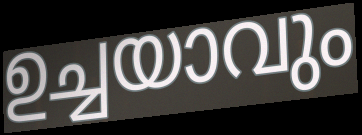
ഉച്ചയാവും